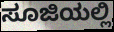
ಸೂಜಿಯಲ್ಲಿ